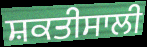
ਸ਼ਕਤੀਸਾਲੀ